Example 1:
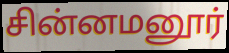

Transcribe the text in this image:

சின்னமனூர்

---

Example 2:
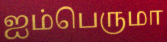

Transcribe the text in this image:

ஐம்பெருமா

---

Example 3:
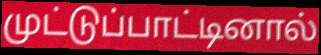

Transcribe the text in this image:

முட்டுப்பாட்டினால்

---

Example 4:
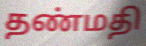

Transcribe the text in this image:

தண்மதி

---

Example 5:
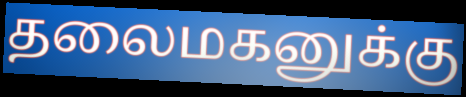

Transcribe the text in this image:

தலைமகனுக்கு